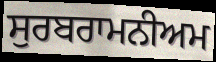
ਸੁਰਬਰਾਮਨੀਅਮ